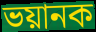
ভয়ানক